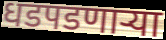
धडपडणाऱ्या